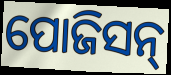
ପୋଜିସନ୍